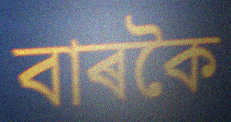
বাৰকৈ